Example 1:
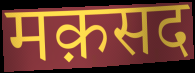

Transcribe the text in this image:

मक़सद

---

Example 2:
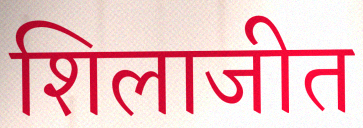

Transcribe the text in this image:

शिलाजीत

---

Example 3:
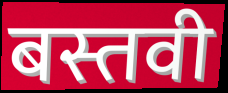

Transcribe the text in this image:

बस्तवी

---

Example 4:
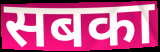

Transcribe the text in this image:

सबका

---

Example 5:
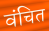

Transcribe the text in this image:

वंचित